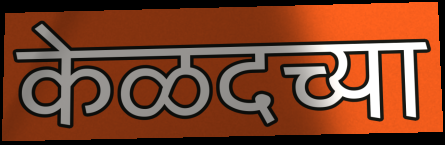
केळदच्या